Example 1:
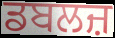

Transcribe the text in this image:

ਡਬਲਜ਼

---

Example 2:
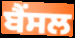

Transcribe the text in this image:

ਬੈਂਸਲ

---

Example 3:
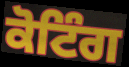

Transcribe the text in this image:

ਕੋਟਿੰਗ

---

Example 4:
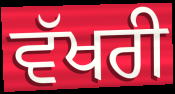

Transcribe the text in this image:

ਵੱਖਰੀ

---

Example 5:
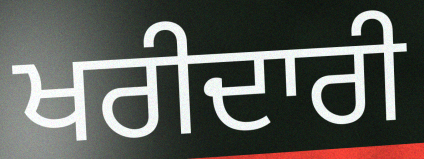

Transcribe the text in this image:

ਖਰੀਦਾਰੀ